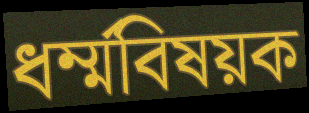
ধর্ম্মবিষয়ক